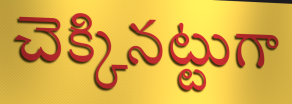
చెక్కినట్టుగా